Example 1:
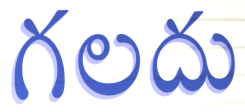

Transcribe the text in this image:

గలదు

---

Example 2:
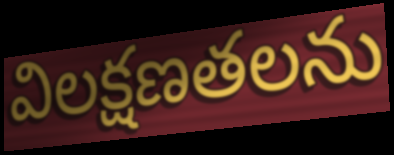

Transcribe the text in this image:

విలక్షణతలను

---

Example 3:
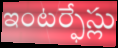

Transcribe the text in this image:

ఇంటర్ఫేస్లు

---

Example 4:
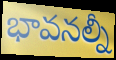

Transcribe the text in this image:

భావనల్నీ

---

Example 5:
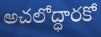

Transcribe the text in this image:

అచలోద్ధారకో